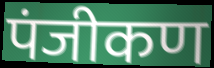
पंजीकण